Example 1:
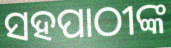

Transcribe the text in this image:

ସହପାଠୀଙ୍କ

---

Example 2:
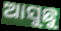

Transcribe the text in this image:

ଆସୁଛୁ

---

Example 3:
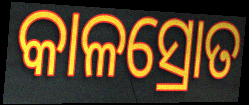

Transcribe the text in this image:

କାଳସ୍ରୋତ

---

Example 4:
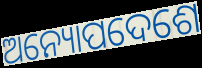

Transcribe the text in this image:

ଅନ୍ୟୋପଦେଶେ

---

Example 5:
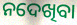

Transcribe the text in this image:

ନଦେଖିବା